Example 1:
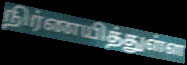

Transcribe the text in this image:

நிர்ணயித்துள்ள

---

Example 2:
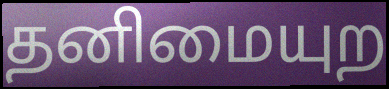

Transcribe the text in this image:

தனிமையுற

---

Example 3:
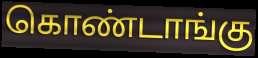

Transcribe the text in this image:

கொண்டாங்கு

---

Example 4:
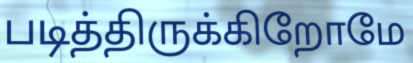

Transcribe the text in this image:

படித்திருக்கிறோமே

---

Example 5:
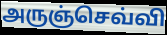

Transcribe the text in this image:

அருஞ்செவ்வி